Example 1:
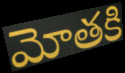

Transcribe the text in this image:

మోతకి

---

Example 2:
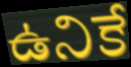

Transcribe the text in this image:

ఉనికే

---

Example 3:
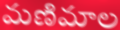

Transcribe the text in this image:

మణిమాల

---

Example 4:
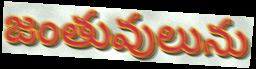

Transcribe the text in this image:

జంతువులును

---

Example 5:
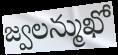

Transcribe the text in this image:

జ్వలన్ముఖో